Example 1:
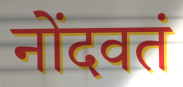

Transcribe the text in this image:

नोंदवतं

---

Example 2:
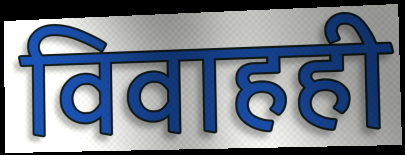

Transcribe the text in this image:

विवाहही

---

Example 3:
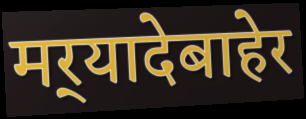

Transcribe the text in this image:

मर्यादेबाहेर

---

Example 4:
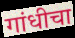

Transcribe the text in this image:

गांधीचा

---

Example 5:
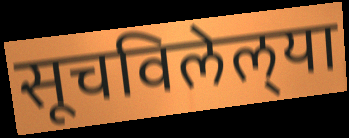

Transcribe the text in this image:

सूचविलेल्या